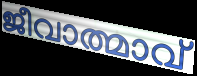
ജീവാത്മാവ്